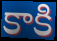
కాకి